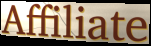
Affiliate